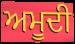
ਅਮੂਦੀ